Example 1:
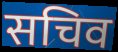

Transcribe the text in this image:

सचिव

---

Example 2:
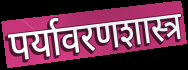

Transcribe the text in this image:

पर्यावरणशास्त्र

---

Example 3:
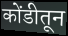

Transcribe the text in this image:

कोंडीतून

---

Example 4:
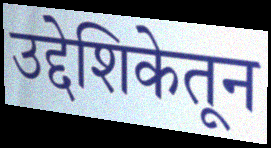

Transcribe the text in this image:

उद्देशिकेतून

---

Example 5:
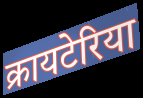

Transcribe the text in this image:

क्रायटेरिया